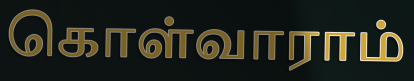
கொள்வாராம்